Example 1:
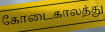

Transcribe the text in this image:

கோடைகாலத்து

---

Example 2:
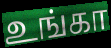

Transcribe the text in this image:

உங்கா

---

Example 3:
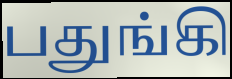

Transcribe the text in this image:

பதுங்கி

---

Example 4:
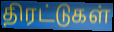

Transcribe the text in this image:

திரட்டுகள்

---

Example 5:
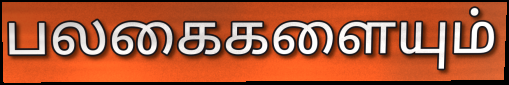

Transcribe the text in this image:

பலகைகளையும்